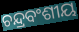
ଚନ୍ଦ୍ରବଂଶୀୟ